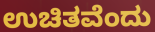
ಉಚಿತವೆಂದು